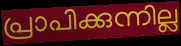
പ്രാപിക്കുന്നില്ല